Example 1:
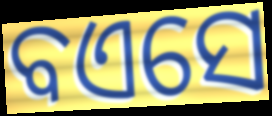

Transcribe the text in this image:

ବଏସେ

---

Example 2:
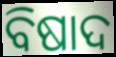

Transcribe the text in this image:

ବିଷାଦ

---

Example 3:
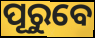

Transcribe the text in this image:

ପୂରୁବେ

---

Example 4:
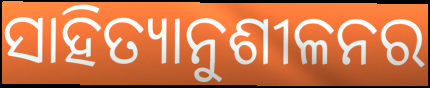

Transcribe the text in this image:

ସାହିତ୍ୟାନୁଶୀଳନର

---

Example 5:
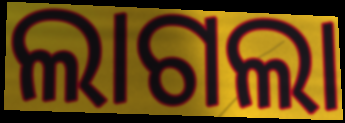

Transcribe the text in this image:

ଲାଗଲା